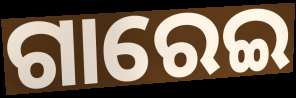
ଗାରେଇ